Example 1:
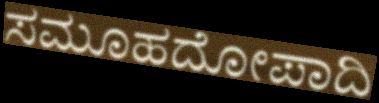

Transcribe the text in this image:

ಸಮೂಹದೋಪಾದಿ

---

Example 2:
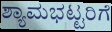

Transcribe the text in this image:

ಶ್ಯಾಮಭಟ್ಟರಿಗೆ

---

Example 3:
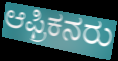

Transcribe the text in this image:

ಆಫ್ರಿಕನರು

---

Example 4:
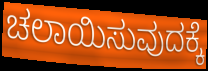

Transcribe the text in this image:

ಚಲಾಯಿಸುವುದಕ್ಕೆ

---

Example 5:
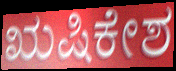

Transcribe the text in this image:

ಋಷಿಕೇಶ